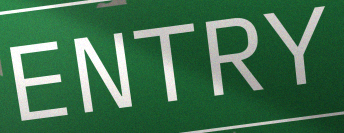
ENTRY